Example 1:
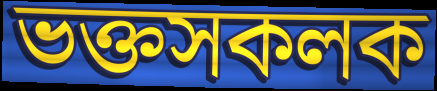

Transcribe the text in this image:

ভক্তসকলক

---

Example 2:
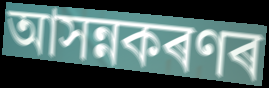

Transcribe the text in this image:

আসন্নকৰণৰ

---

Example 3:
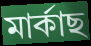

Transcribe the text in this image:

মাৰ্কাছ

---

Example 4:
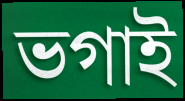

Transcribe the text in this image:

ভগাই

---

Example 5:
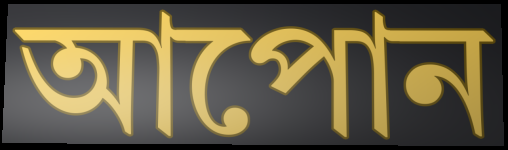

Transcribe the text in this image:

আপোন